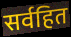
सर्वहित